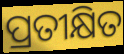
ପ୍ରତୀକ୍ଷିତ